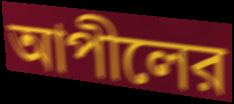
আপীলের